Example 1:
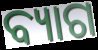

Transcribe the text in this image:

ବ୍ୟାଗ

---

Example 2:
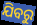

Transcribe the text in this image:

ଯିବରୁ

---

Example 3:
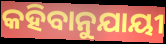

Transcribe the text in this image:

କହିବାନୁଯାୟୀ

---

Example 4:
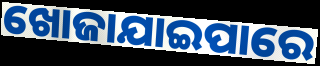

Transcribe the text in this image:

ଖୋଜାଯାଇପାରେ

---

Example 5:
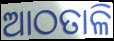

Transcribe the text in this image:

ଆଠତାଳି